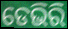
ଡେଭିରି